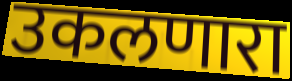
उकलणारा